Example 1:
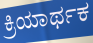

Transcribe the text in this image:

ಕ್ರಿಯಾರ್ಥಕ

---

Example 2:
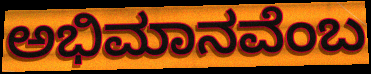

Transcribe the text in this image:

ಅಭಿಮಾನವೆಂಬ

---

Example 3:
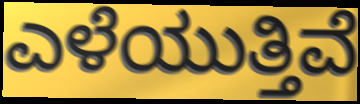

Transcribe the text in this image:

ಎಳೆಯುತ್ತಿವೆ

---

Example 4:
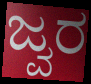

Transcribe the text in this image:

ಜ್ವರ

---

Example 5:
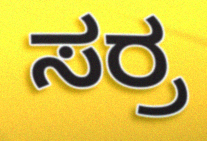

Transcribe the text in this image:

ಸರ್ರ